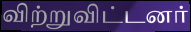
விற்றுவிட்டனர்